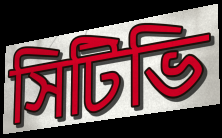
সিটিভি